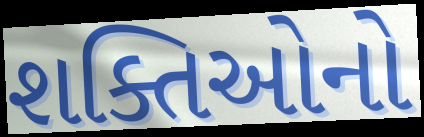
શક્તિઓનો